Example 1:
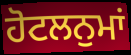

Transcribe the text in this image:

ਹੋਟਲਨੁਮਾਂ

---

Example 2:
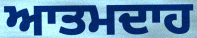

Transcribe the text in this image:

ਆਤਮਦਾਹ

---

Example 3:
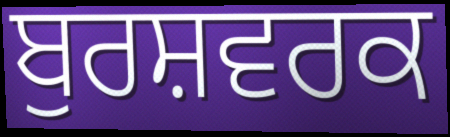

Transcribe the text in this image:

ਬੁਰਸ਼ਵਰਕ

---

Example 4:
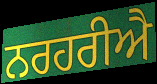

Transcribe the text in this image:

ਨਰਹਰੀਐ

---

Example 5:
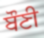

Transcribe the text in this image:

ਬੌਣੀ